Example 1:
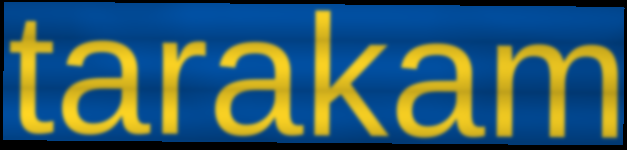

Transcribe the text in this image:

tarakam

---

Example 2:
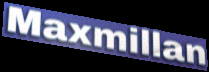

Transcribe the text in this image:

Maxmillan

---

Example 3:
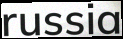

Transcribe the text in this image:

russia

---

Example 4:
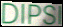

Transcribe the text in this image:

DIPSI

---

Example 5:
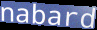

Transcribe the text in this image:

nabard